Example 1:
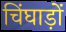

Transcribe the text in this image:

चिंघाड़ों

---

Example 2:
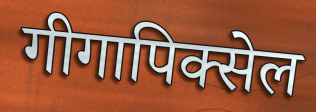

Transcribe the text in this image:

गीगापिक्सेल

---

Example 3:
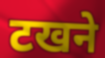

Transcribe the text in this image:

टखने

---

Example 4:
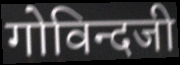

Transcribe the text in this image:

गोविन्दजी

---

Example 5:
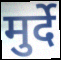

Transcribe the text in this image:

मुर्दे